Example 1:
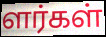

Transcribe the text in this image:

ளர்கள்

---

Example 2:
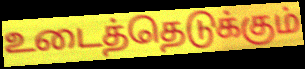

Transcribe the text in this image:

உடைத்தெடுக்கும்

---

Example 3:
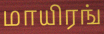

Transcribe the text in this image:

மாயிரங்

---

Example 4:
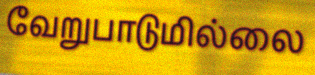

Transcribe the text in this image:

வேறுபாடுமில்லை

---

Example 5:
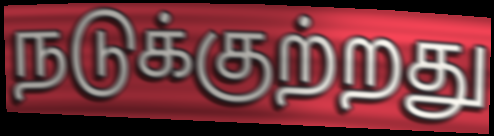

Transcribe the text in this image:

நடுக்குற்றது